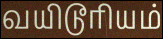
வயிடூரியம்